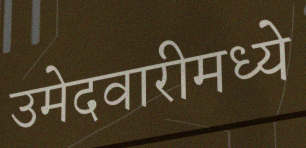
उमेदवारीमध्ये